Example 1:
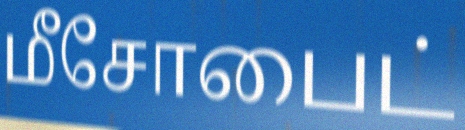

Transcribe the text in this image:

மீசோபைட்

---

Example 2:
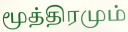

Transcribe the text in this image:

மூத்திரமும்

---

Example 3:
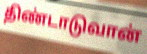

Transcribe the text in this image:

திண்டாடுவான்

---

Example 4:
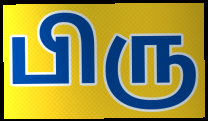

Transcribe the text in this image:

பிரு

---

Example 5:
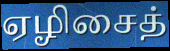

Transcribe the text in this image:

ஏழிசைத்